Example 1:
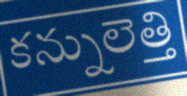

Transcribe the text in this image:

కన్నులెత్తి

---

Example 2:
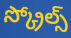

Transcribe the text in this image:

స్క్రోల్స్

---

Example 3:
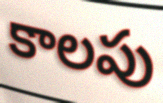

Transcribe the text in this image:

కాలపు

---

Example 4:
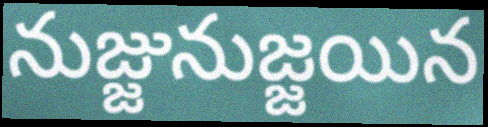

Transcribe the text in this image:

నుజ్జునుజ్జయిన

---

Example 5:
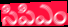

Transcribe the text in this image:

సిపిఎం